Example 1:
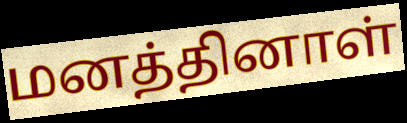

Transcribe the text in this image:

மனத்தினாள்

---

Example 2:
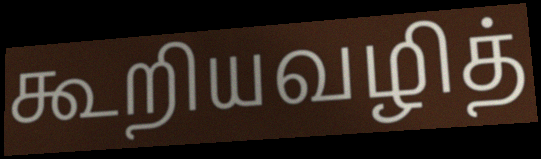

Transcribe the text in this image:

கூறியவழித்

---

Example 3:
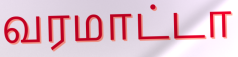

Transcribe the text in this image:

வரமாட்டா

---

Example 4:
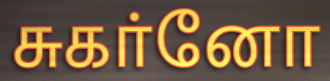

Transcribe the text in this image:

சுகர்னோ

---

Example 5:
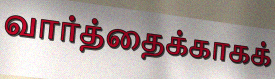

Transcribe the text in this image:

வார்த்தைக்காகக்